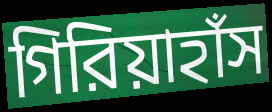
গিরিয়াহাঁস